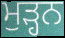
ਮੁੜ੍ਹਨ